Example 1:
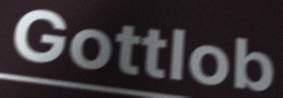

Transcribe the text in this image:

Gottlob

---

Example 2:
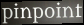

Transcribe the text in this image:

pinpoint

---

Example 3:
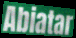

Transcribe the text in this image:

Abiatar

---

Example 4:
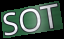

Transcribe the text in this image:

SOT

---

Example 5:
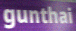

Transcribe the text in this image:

gunthai